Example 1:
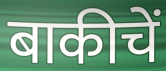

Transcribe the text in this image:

बाकीचें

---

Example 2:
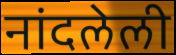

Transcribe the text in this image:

नांदलेली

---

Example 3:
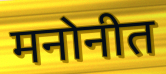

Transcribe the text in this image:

मनोनीत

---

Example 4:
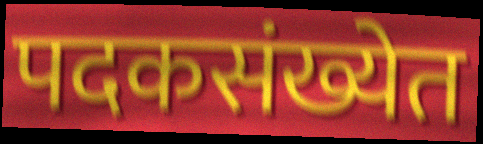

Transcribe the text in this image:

पदकसंख्येत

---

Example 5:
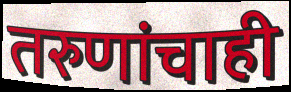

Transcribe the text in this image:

तरुणांचाही